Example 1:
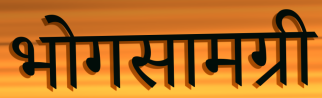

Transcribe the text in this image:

भोगसामग्री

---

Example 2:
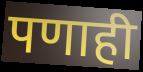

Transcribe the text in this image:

पणाही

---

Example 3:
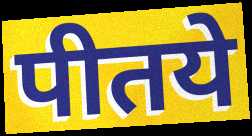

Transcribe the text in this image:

पीतये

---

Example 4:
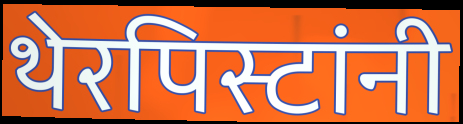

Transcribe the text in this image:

थेरपिस्टांनी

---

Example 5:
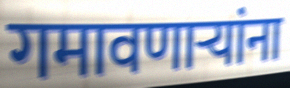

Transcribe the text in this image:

गमावणाऱ्यांना